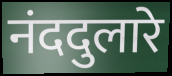
नंददुलारे